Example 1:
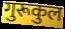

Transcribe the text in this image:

गुरूकुल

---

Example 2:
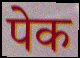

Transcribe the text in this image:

पेक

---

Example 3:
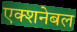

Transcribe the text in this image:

एक्शनेबल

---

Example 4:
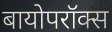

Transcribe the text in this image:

बायोपरॉक्स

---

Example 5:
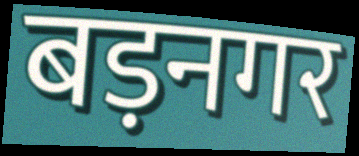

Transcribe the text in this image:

बड़नगर